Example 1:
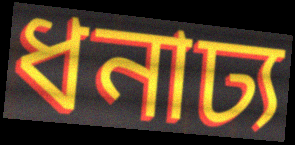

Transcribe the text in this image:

ধনাঢ্য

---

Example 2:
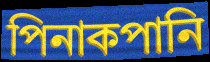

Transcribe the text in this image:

পিনাকপানি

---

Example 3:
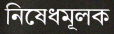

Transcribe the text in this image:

নিষেধমূলক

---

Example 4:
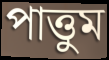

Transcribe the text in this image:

পাত্তুম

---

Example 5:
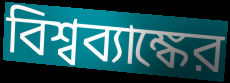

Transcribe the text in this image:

বিশ্বব্যাঙ্কের